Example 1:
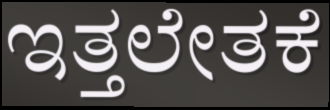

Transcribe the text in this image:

ಇತ್ತಲೇತಕೆ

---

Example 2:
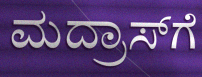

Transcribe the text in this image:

ಮದ್ರಾಸ್‍ಗೆ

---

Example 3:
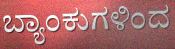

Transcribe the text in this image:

ಬ್ಯಾಂಕುಗಳಿಂದ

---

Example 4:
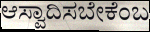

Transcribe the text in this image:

ಆಸ್ವಾದಿಸಬೇಕೆಂಬ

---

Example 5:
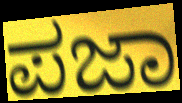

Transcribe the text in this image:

ಪಜಾ